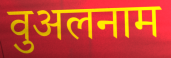
वुअलनाम